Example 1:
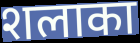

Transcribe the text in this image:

शलाका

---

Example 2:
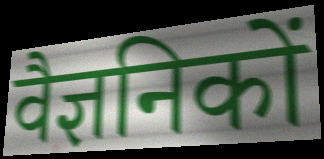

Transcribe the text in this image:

वैज्ञनिकों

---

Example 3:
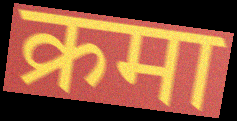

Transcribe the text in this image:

क्रमा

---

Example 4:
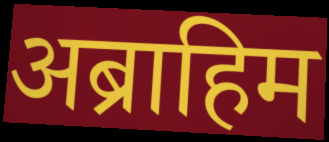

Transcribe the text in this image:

अब्राहिम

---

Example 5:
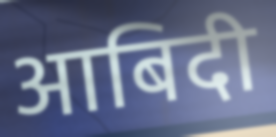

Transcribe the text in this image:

आबिदी